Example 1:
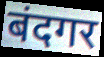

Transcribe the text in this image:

बंदगर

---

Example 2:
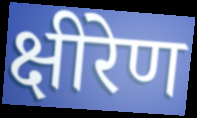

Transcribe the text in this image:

क्षीरेण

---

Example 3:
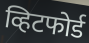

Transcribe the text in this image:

व्हिटफोर्ड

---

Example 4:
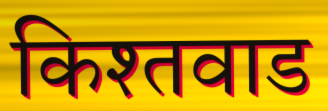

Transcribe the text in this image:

किश्तवाड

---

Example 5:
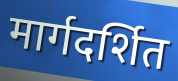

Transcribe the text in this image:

मार्गदर्शित